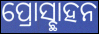
ପ୍ରୋସ୍ଛାହନ